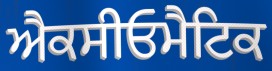
ਐਕਸੀਓਮੈਟਿਕ